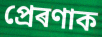
প্ৰেৰণাক